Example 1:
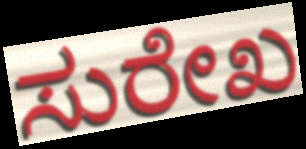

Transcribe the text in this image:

ಸುರೇಖ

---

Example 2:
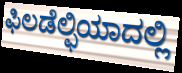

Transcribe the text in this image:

ಫಿಲಡೆಲ್ಫಿಯಾದಲ್ಲಿ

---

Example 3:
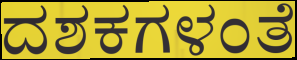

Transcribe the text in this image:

ದಶಕಗಳಂತೆ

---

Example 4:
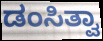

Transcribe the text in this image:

ಡಂಸಿತ್ವಾ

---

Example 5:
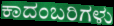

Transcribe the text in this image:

ಕಾದಂಬರಿಗಳು